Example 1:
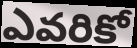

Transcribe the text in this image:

ఎవరికో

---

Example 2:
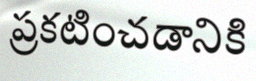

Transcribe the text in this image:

ప్రకటించడానికి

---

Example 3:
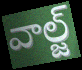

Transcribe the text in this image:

వాల్జ్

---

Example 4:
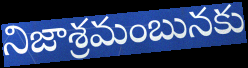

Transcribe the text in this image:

నిజాశ్రమంబునకు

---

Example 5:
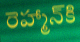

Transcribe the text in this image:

రెహ్మాన్‌కి